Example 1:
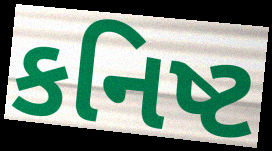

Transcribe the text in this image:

કનિષ્ટ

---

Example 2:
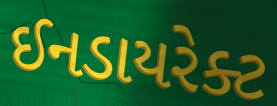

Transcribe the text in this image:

ઈનડાયરેક્ટ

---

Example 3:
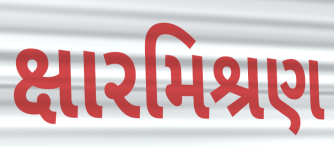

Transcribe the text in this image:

ક્ષારમિશ્રણ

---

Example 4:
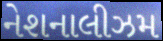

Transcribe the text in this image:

નેશનાલીઝમ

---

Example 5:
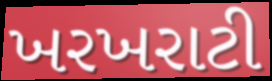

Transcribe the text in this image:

ખરખરાટી